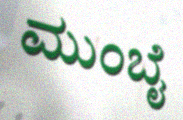
ಮುಂಬೈ